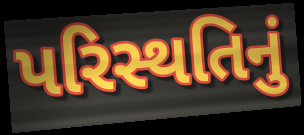
પરિસ્થતિનું